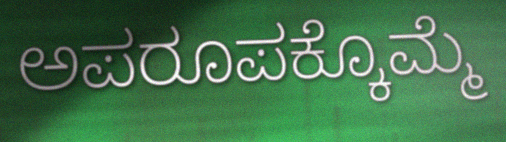
ಅಪರೂಪಕ್ಕೊಮ್ಮೆ